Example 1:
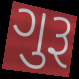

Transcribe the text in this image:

ગુરૂ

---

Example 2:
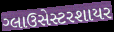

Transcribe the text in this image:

ગ્લાઉસેસ્ટરશાયર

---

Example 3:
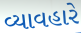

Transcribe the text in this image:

વ્યાવહારે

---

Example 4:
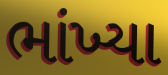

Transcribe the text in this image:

ભાંખ્યા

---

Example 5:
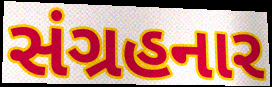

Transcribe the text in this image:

સંગ્રહનાર